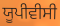
ਯੂਪੀਵੀਸੀ